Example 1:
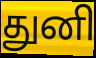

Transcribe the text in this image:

துனி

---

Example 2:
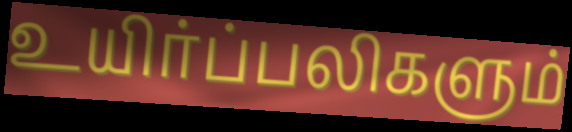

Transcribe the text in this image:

உயிர்ப்பலிகளும்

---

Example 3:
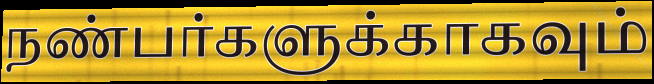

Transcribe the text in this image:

நண்பர்களுக்காகவும்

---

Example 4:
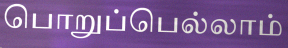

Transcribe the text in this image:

பொறுப்பெல்லாம்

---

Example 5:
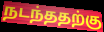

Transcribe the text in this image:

நடந்ததற்கு